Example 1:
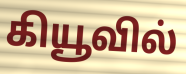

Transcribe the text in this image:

கியூவில்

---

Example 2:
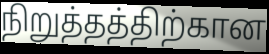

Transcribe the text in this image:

நிறுத்தத்திற்கான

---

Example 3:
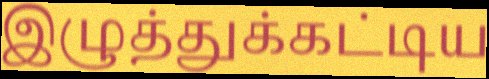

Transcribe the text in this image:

இழுத்துக்கட்டிய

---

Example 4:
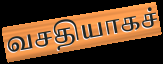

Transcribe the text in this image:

வசதியாகச்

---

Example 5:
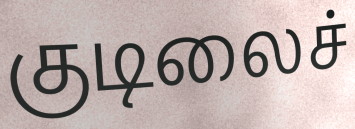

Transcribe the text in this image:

குடிலைச்